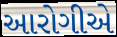
આરોગીએ